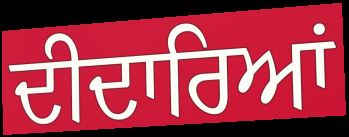
ਦੀਦਾਰਿਆਂ